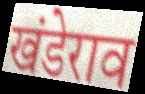
खंडेराव